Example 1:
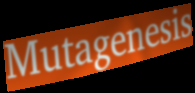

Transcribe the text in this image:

Mutagenesis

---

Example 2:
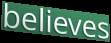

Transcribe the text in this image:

believes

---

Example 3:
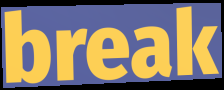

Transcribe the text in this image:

break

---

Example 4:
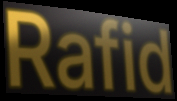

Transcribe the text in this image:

Rafid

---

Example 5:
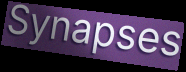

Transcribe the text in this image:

Synapses